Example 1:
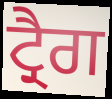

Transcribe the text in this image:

ਟ੍ਰੈਗ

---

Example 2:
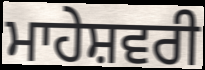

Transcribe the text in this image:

ਮਾਹੇਸ਼ਵਰੀ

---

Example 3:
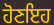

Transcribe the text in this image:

ਹੋਣਇਹ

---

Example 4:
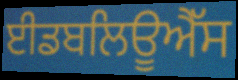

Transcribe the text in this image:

ਈਡਬਲਿਊਐੱਸ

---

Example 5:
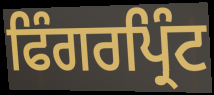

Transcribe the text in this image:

ਫਿੰਗਰਪ੍ਰਿੰਟ